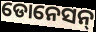
ଡୋନେସନ୍